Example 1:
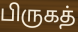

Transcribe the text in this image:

பிருகத்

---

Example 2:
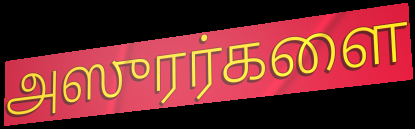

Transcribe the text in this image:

அஸுரர்களை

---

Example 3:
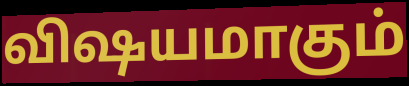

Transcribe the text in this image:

விஷயமாகும்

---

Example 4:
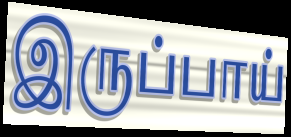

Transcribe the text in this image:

இருப்பாய்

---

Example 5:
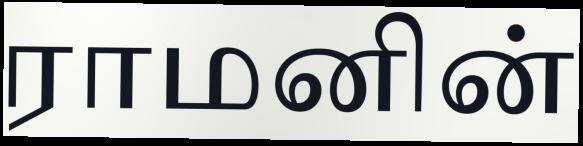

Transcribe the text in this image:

ராமனின்